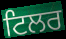
ਟਿਲਰ